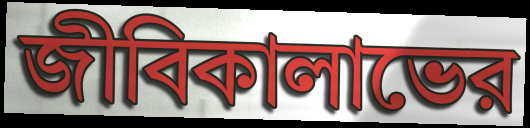
জীবিকালাভের